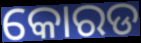
କୋରଡ